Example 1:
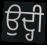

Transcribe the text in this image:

ਉਦ੍ਹੀ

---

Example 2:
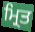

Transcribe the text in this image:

ਮ੍ਰਿਤ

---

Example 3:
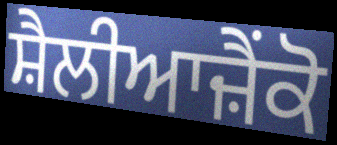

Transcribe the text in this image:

ਸ਼ੈਲੀਆਜ਼ੈਂਕੋ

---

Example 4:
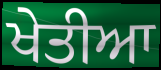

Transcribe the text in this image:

ਖੇਤੀਆ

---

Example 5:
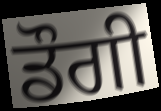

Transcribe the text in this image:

ਡੌਗੀ